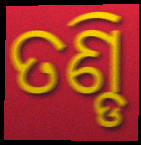
ତଣ୍ଡି